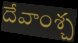
దేవాంశ్చ